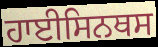
ਹਾਈਸਿਨਥਸ